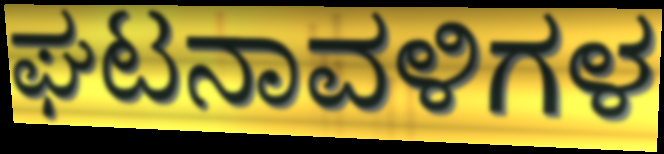
ಘಟನಾವಳಿಗಳ